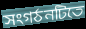
সংগঠনটিতে